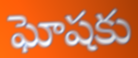
ఘోషకు